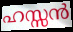
ഹസ്സൻ